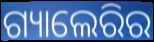
ଗ୍ୟାଲେରିର